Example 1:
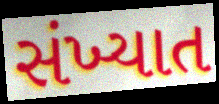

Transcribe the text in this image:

સંખ્યાત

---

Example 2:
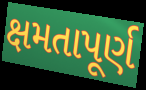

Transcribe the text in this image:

ક્ષમતાપૂર્ણ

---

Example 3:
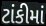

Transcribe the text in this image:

ટાંકીમાં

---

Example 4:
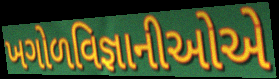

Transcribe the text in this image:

ખગોળવિજ્ઞાનીઓએ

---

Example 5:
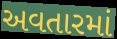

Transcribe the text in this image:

અવતારમાં